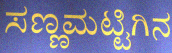
ಸಣ್ಣಮಟ್ಟಿಗಿನ